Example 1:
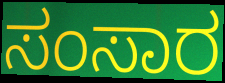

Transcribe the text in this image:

ಸಂಸಾರ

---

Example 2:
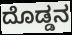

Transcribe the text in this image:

ದೊಡ್ಡನ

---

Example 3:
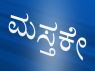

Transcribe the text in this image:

ಮಸ್ತಕೇ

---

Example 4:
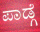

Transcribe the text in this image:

ಪಾಡ್ಗೆ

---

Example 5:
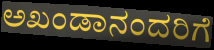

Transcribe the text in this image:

ಅಖಂಡಾನಂದರಿಗೆ